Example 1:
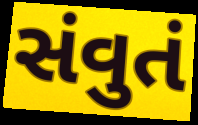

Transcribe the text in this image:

સંવુતં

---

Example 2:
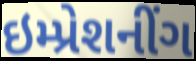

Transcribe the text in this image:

ઇમ્પ્રેશનીંગ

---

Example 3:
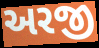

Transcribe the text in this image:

અરજી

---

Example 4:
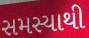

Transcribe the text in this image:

સમસ્યાથી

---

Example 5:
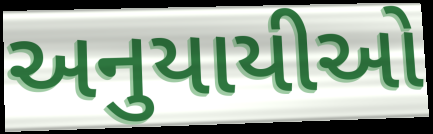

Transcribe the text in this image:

અનુયાયીઓ